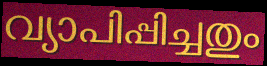
വ്യാപിപ്പിച്ചതും